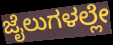
ಜೈಲುಗಳಲ್ಲೇ